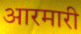
आरमारी